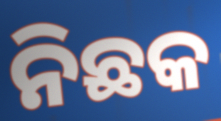
ନିଛକ